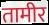
तामीर